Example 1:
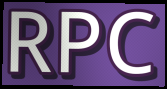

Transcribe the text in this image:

RPC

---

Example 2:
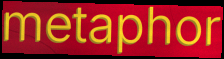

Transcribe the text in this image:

metaphor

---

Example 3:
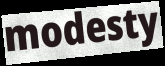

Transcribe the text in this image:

modesty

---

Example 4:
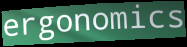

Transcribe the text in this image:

ergonomics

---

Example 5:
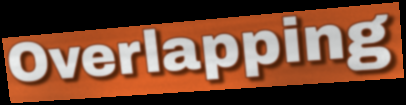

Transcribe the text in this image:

Overlapping